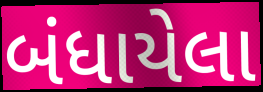
બંધાયેલા